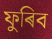
ফুৰিব